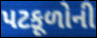
પટકૂળોની